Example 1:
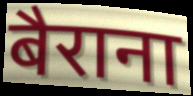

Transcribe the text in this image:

बैराना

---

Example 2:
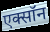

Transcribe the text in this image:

एक्सॉन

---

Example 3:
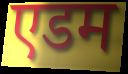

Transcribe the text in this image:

एडम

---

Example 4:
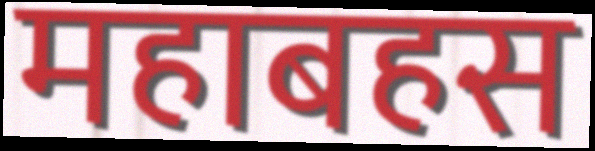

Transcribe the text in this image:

महाबहस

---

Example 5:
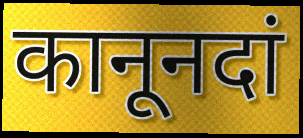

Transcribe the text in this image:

कानूनदां